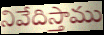
నివేదిస్తాము